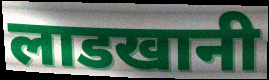
लाडखानी